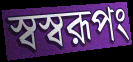
স্বস্বরূপং